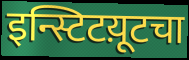
इन्स्टिटय़ूटचा